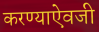
करण्याऐवजी